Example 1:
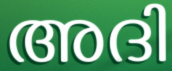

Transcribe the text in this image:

അദി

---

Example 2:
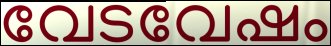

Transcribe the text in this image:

വേടവേഷം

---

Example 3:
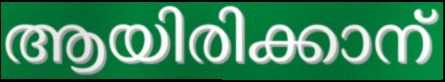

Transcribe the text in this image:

ആയിരിക്കാന്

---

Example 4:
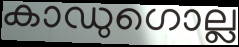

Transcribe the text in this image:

കാഡുഗൊല്ല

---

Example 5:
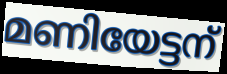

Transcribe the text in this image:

മണിയേട്ടന്